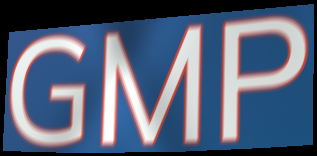
GMP